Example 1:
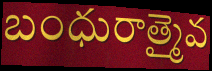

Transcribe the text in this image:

బంధురాత్మైవ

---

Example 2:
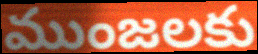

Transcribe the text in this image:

ముంజలకు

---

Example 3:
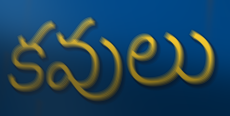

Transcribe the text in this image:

కవులు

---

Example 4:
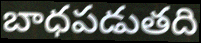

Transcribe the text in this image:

బాధపడుతది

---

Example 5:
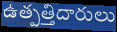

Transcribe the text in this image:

ఉత్పత్తిదారులు